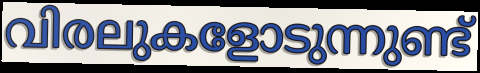
വിരലുകളോടുന്നുണ്ട്